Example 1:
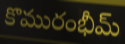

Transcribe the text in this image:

కొమురంభీమ్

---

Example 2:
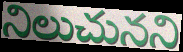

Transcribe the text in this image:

నిలుచునని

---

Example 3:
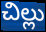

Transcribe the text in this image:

చిల్లు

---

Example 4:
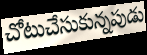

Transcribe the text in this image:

చోటుచేసుకున్నపుడు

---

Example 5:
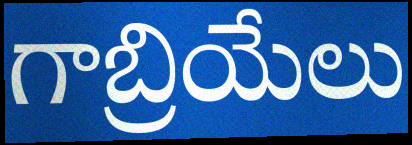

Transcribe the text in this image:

గాబ్రియేలు